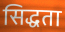
सिद्धता